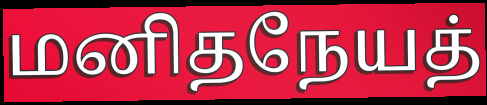
மனிதநேயத்